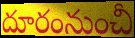
దూరంనుంచీ